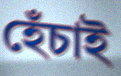
হেঁচাই